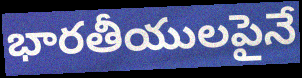
భారతీయులపైనే